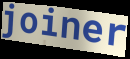
joiner